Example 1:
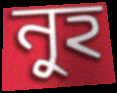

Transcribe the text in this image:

নুহ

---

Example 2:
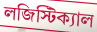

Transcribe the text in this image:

লজিস্টিক্যাল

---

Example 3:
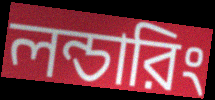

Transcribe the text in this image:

লন্ডারিং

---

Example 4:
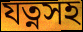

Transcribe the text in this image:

যত্নসহ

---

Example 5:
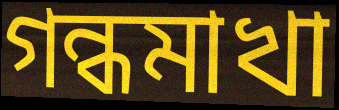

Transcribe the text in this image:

গন্ধমাখা